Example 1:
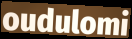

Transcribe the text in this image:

oudulomi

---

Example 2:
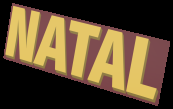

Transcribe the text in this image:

NATAL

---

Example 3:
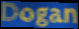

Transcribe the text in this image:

Dogan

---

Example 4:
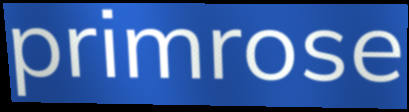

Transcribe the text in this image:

primrose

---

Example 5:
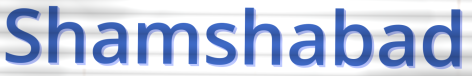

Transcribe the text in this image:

Shamshabad